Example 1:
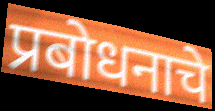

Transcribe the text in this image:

प्रबोधनाचे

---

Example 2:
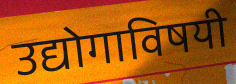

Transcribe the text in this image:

उद्योगाविषयी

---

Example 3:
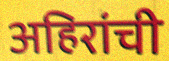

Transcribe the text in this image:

अहिरांची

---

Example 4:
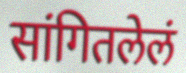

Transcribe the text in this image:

सांगितलेलं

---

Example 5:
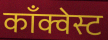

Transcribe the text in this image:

काँक्वेस्ट